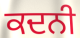
ਕਦਨੀ